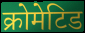
क्रोमेटिड